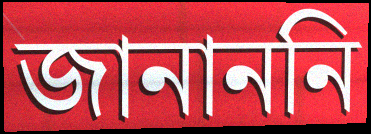
জানাননি